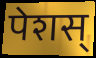
पेशस्